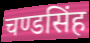
चण्डसिंह